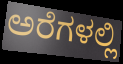
ಅರೆಗಳಲ್ಲಿ